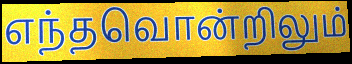
எந்தவொன்றிலும்